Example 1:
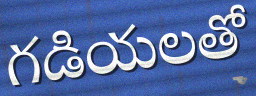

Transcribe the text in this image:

గడియలతో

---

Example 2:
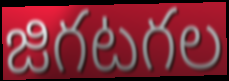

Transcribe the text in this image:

జిగటగల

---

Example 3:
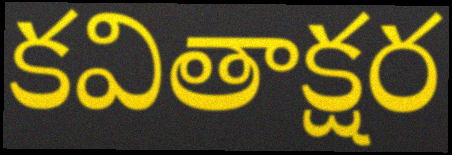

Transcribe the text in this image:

కవితాక్షర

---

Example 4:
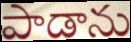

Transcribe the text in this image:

పాడాను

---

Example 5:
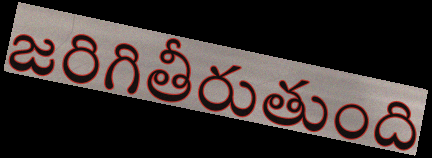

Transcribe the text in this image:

జరిగితీరుతుంది